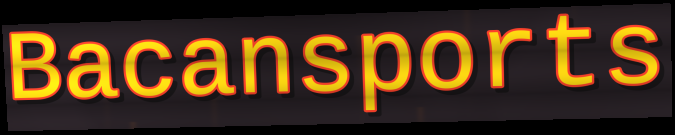
Bacansports